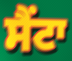
ਸੈਂਟਾ